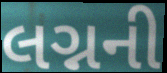
લગ્નની